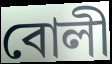
বোলী